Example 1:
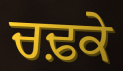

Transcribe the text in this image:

ਚਢ਼ਕੇ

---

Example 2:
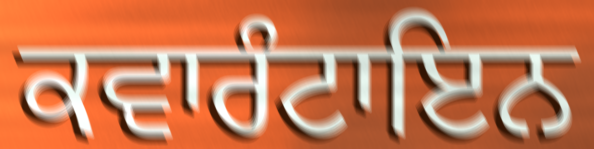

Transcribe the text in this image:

ਕਵਾਰੰਟਾਇਨ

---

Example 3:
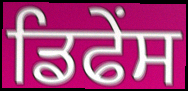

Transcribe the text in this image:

ਡਿਫੇਂਸ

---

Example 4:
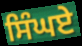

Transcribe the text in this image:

ਸਿੰਘਏ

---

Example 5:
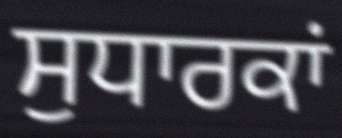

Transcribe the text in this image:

ਸੁਧਾਰਕਾਂ